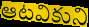
ఆటవికుని